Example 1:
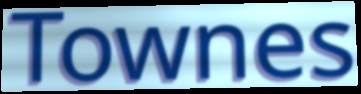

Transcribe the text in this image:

Townes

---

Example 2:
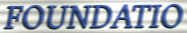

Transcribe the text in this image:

FOUNDATIO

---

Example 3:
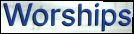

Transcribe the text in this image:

Worships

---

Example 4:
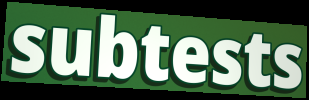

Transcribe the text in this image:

subtests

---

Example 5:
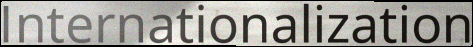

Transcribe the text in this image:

Internationalization